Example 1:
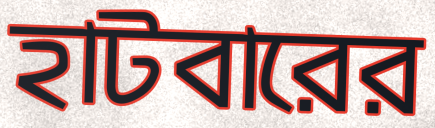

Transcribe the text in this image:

হাটবারের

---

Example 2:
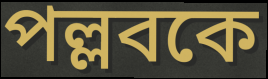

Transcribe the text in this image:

পল্লবকে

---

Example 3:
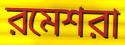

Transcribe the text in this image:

রমেশরা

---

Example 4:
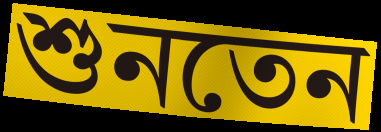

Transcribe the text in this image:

শুনতেন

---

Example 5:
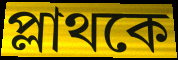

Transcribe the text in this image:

প্লাথকে